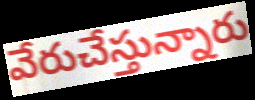
వేరుచేస్తున్నారు